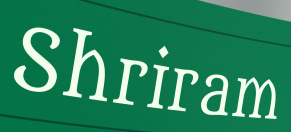
Shriram